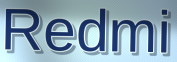
Redmi